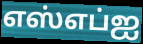
எஸ்எப்ஐ